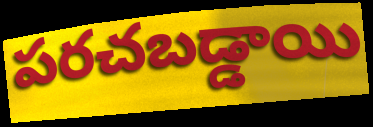
పరచబడ్డాయి